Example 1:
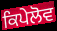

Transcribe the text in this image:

ਕਿਪੇਲੋਵ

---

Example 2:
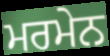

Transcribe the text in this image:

ਮਰਮੇਨ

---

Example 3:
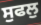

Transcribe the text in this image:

ਸੁਫਲੁ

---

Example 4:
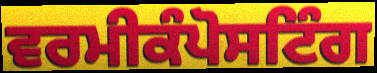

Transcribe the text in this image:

ਵਰਮੀਕੰਪੋਸਟਿੰਗ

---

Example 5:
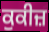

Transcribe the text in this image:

ਕੁਕੀਜ਼